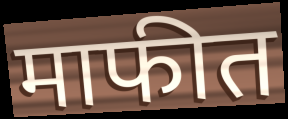
माफीत